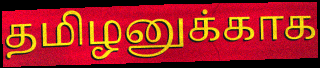
தமிழனுக்காக